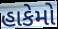
હાકેમો